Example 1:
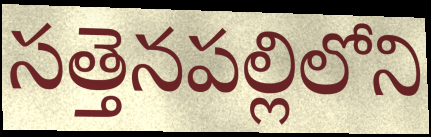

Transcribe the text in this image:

సత్తెనపల్లిలోని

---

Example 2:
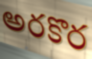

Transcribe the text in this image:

అరకొర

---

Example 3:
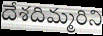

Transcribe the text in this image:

దేశదిమ్మరిని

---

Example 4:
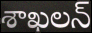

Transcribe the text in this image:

శాఖలన్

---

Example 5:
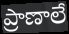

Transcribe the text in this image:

ప్రాణాలే